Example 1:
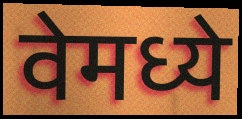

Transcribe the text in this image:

वेमध्ये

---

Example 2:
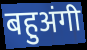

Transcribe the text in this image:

बहुअंगी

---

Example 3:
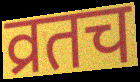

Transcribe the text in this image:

व्रतच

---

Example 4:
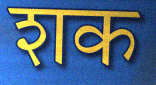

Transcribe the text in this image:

शक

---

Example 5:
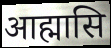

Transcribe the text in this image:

आह्मासि